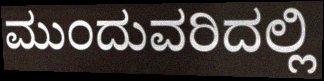
ಮುಂದುವರಿದಲ್ಲಿ